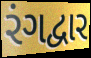
રંગદ્વાર